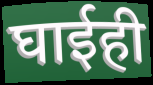
घाईही